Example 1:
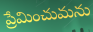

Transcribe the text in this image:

ప్రేమించుమను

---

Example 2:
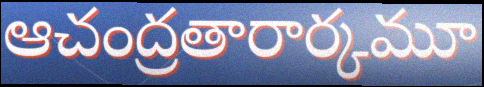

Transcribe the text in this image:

ఆచంద్రతారార్కమూ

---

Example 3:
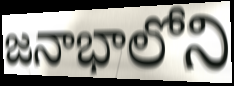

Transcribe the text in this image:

జనాభాలోని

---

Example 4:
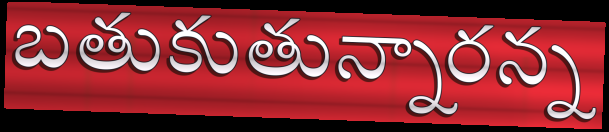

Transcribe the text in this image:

బతుకుతున్నారన్న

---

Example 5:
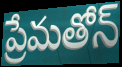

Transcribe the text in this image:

ప్రేమతోన్